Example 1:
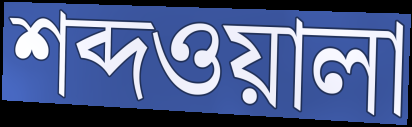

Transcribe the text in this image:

শব্দওয়ালা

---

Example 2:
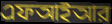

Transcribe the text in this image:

এফআইআর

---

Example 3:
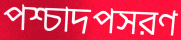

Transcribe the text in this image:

পশ্চাদপসরণ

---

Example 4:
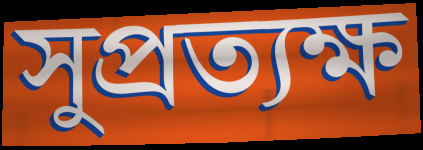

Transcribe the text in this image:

সুপ্রত্যক্ষ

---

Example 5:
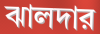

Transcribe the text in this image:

ঝালদার